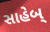
સાહેબ્